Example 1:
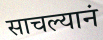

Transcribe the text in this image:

साचल्यानं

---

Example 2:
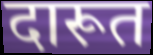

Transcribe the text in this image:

दारूत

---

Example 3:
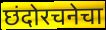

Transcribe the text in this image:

छंदोरचनेचा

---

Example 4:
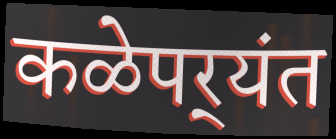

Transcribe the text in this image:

कळेपर्यंत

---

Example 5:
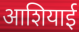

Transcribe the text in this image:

आशियाई